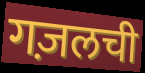
गज़लची